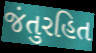
જંતુરહિત